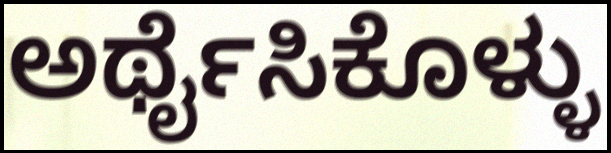
ಅರ್ಥೈಸಿಕೊಳ್ಳು